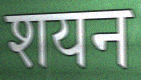
शयन